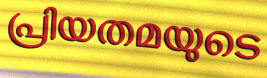
പ്രിയതമയുടെ